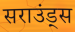
सराउंड्स